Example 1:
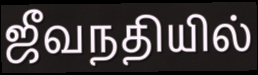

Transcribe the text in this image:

ஜீவநதியில்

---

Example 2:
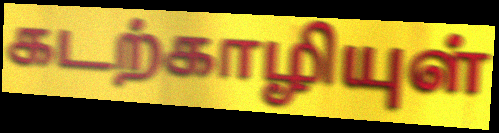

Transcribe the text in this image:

கடற்காழியுள்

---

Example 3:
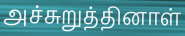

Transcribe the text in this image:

அச்சுறுத்தினாள்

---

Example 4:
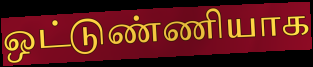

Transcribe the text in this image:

ஒட்டுண்ணியாக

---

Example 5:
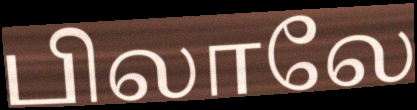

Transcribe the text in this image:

பிலாலே